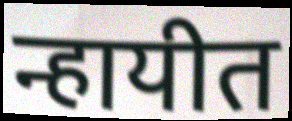
न्हायीत